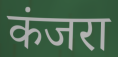
कंजरा